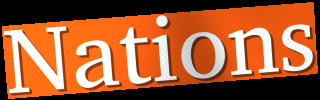
Nations